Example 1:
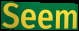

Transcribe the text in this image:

Seem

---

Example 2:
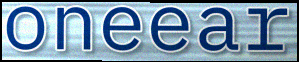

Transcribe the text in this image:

oneear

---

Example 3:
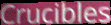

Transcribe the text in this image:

Crucibles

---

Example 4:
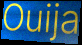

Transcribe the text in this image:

Ouija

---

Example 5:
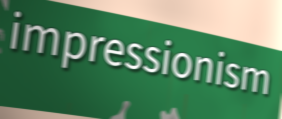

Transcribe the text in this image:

impressionism